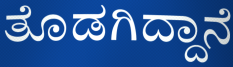
ತೊಡಗಿದ್ದಾನೆ